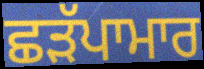
ਛੜੱਪਾਮਾਰ